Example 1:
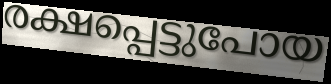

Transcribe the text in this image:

രക്ഷപ്പെട്ടുപോയ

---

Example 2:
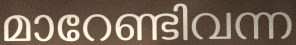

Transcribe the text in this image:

മാറേണ്ടിവന്ന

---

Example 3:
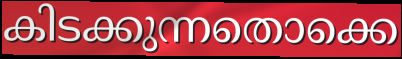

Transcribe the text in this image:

കിടക്കുന്നതൊക്കെ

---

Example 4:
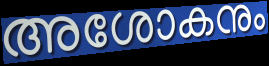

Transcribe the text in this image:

അശോകനും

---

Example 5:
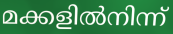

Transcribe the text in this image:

മക്കളിൽനിന്ന്